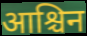
आश्चिन